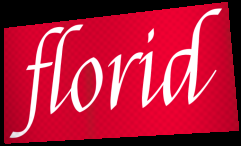
florid